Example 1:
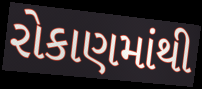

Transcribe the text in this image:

રોકાણમાંથી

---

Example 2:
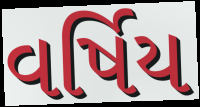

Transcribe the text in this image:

વર્ષિય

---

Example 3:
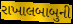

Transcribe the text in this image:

રાખાલબાબુની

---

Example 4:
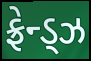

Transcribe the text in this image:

ફ્રેન્ડ્ઝ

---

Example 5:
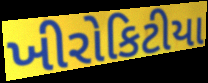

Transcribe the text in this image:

ખીરોકિટીયા